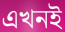
এখনই